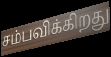
சம்பவிக்கிறது